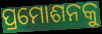
ପ୍ରମୋଶନକୁ